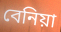
বেনিয়া